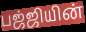
பஜ்ஜியின்